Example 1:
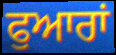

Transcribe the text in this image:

ਫੁਆਰਾਂ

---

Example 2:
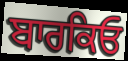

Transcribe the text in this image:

ਬਾਰਕਿਓ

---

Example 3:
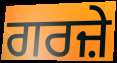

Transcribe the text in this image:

ਗਰਜ਼ੇ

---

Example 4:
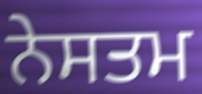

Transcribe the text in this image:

ਨੇਸਤਮ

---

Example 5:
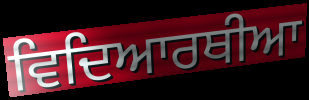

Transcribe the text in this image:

ਵਿਦਿਆਰਥੀਆ